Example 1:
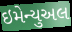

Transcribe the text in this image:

ઇમેન્યુઅલ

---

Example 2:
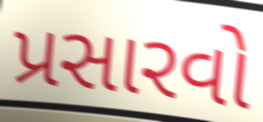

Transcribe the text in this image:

પ્રસારવો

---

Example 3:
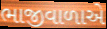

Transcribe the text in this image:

ભાજીવાળાએ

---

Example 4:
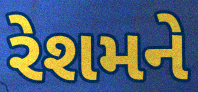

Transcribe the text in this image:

રેશમને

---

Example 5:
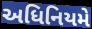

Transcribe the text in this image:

અધિનિયમે